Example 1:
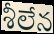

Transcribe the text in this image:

శీలేన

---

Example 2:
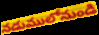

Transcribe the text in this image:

నడుములోనుండి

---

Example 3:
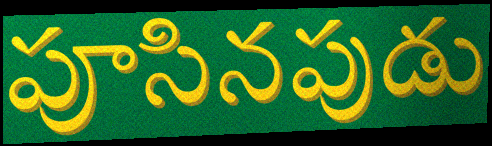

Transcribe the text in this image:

పూసినపుడు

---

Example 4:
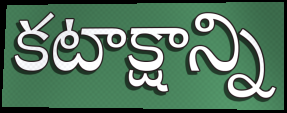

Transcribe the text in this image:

కటాక్షాన్ని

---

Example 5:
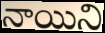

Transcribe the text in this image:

నాయిని